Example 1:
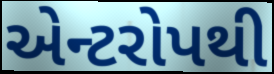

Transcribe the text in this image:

એન્ટરોપથી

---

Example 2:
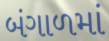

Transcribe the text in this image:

બંગાળમાં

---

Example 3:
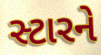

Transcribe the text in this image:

સ્ટારને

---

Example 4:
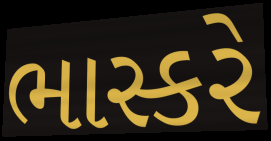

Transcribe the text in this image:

ભાસ્કરે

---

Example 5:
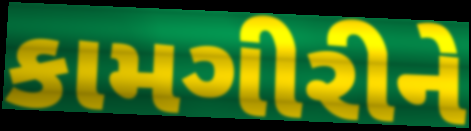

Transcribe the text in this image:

કામગીરીને